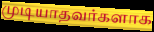
முடியாதவர்களாக